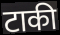
टाकी